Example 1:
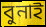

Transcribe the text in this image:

বুনাই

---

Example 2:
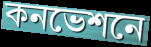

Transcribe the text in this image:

কনভেশনে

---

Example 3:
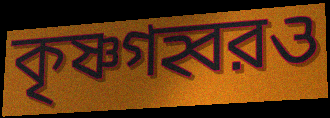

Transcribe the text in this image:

কৃষ্ণগহ্বরও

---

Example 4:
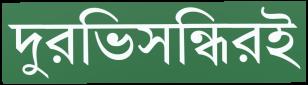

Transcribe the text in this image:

দুরভিসন্ধিরই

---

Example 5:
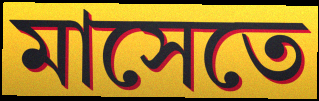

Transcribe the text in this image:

মাসেতে